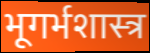
भूगर्भशास्त्र